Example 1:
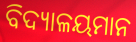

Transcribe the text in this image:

ବିଦ୍ୟାଳୟମାନ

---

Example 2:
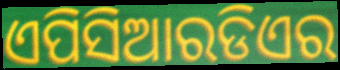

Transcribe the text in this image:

ଏପିସିଆରଡିଏର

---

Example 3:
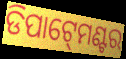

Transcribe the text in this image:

ଡିପାଟ୍‍ମେଣ୍ଟର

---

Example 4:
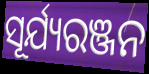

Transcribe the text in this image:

ସୂର୍ଯ୍ୟରଞ୍ଜନ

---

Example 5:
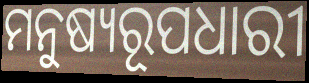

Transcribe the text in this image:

ମନୁଷ୍ୟରୂପଧାରୀ